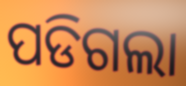
ପଡିଗଲା